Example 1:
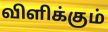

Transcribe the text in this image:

விளிக்கும்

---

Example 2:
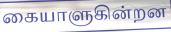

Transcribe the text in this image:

கையாளுகின்றன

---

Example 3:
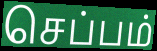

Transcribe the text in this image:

செப்பம்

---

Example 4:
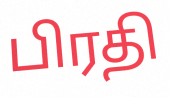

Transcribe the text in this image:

பிரதி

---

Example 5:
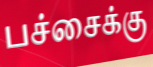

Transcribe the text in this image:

பச்சைக்கு